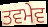
ਤਵਮੇਵ